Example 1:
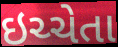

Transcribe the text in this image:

ઇચ્ચેતા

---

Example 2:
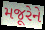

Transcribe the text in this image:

મજૂરેને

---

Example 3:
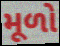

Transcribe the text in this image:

મૂળો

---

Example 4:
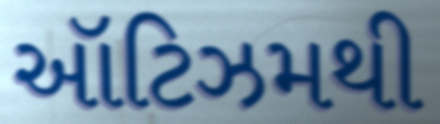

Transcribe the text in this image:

ઑટિઝમથી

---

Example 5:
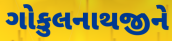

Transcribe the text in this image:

ગોકુલનાથજીને